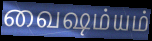
வைஷம்யம்